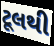
ટૂલથી